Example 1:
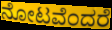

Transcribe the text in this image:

ನೋಟವೆಂದರೆ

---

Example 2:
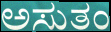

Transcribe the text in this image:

ಅಸುತಂ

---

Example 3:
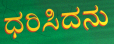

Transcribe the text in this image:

ಧರಿಸಿದನು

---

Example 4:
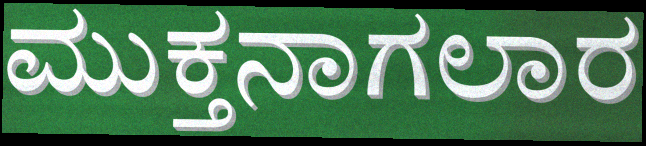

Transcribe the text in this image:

ಮುಕ್ತನಾಗಲಾರ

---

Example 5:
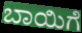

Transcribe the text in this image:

ಬಾಯಿಗೆ